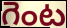
గెంట